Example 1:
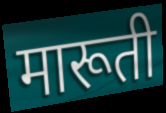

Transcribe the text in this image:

मारूती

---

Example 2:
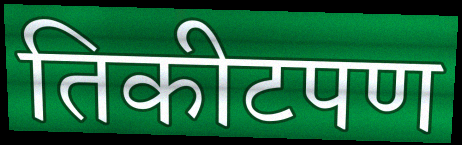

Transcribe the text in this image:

तिकीटपण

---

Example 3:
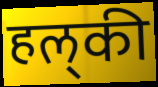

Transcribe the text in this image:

हल्की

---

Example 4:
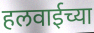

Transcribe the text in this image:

हलवाईच्या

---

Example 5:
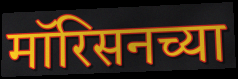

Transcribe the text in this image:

मॉरिसनच्या